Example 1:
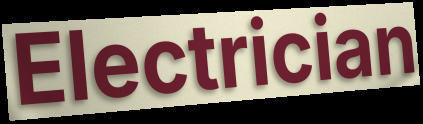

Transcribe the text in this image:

Electrician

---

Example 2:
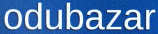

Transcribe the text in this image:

odubazar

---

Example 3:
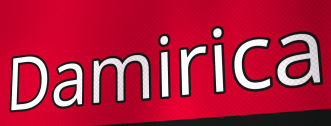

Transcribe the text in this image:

Damirica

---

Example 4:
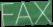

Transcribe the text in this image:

FAX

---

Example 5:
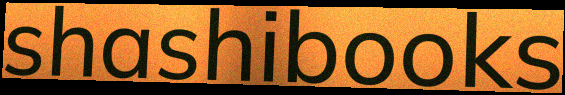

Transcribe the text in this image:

shashibooks